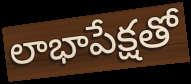
లాభాపేక్షతో